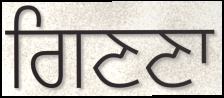
ਗਿਣਣਾ